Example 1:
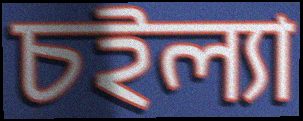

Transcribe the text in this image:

চইল্যা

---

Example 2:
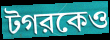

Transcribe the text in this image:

টগরকেও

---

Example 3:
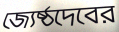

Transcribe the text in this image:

জ্যেষ্ঠদেবের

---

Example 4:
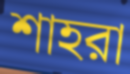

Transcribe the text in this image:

শাহরা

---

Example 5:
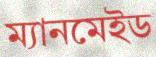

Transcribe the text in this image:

ম্যানমেইড